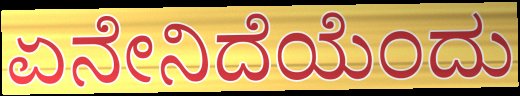
ಏನೇನಿದೆಯೆಂದು